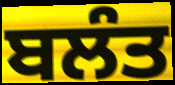
ਬਲੰਤ